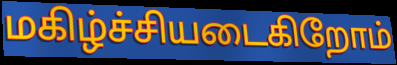
மகிழ்ச்சியடைகிறோம்